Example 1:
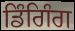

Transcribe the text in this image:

ਡਿੰਗਿੰਗ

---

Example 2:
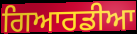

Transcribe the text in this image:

ਗਿਆਰਡੀਆ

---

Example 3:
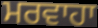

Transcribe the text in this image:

ਮਰਵਾਹਾ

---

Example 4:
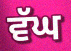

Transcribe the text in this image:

ਵੱਘ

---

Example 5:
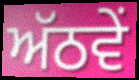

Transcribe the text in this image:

ਅੱਠਵੇਂ